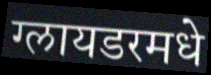
ग्लायडरमधे